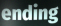
ending